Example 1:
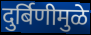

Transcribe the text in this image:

दुर्बिणीमुळे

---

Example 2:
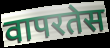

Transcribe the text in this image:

वापरतेस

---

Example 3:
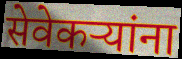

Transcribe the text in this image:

सेवेकऱ्यांना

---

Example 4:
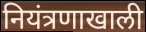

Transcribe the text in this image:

नियंत्रणाखाली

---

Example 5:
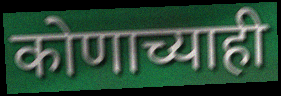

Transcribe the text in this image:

कोणाच्याही